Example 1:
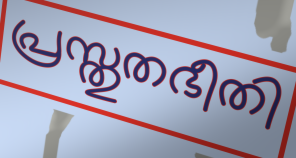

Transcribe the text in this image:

പ്രസ്തുതഭീതി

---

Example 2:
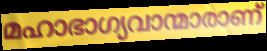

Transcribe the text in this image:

മഹാഭാഗ്യവാന്മാരാണ്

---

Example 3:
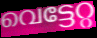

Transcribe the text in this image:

വെട്ടേറ്റ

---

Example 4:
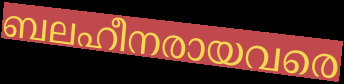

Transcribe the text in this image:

ബലഹീനരായവരെ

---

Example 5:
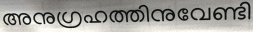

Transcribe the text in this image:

അനുഗ്രഹത്തിനുവേണ്ടി